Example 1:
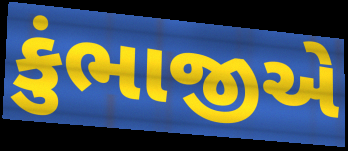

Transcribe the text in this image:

કુંભાજીએ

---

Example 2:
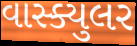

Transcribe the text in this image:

વાસ્ક્યુલર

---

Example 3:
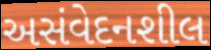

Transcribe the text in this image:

અસંવેદનશીલ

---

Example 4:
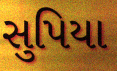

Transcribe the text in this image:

સુપિયા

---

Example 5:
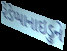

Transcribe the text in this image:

રેડેપ્પાનાઇડુને